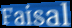
Faisal